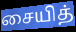
சையித்